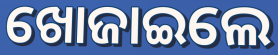
ଖୋଜାଇଲେ